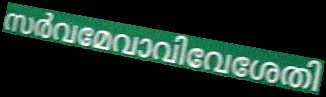
സർവമേവാവിവേശേതി